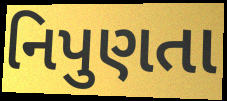
નિપુણતા